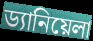
ড্যানিয়েলা